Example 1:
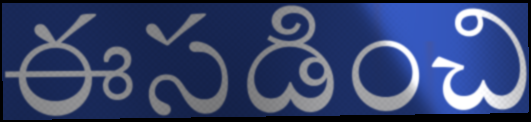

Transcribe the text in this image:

ఈసడించి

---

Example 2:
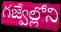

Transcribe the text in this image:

గజ్వేల్లోని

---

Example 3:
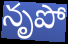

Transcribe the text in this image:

నృపో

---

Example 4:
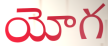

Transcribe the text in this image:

యోగ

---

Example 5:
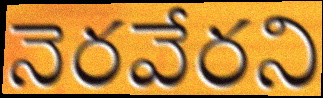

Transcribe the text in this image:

నెరవేరని